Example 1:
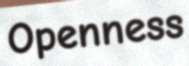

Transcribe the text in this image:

Openness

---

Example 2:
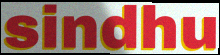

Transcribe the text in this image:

sindhu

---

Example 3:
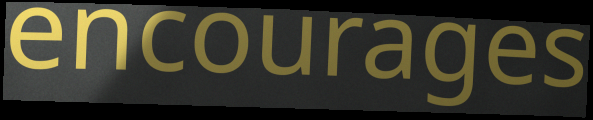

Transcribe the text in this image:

encourages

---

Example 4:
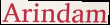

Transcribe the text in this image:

Arindam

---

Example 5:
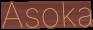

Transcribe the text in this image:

Asoka